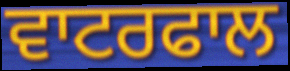
ਵਾਟਰਫਾਲ